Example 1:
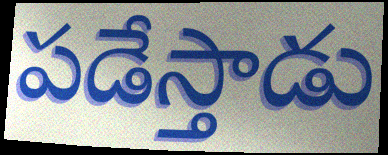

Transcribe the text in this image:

పడేస్తాడు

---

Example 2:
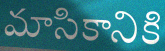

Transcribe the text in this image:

మాసికానికి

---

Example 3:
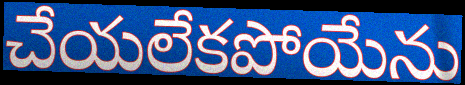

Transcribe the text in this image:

చేయలేకపోయేను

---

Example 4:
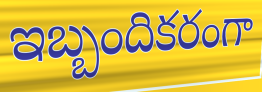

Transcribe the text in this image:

ఇబ్బందికరంగా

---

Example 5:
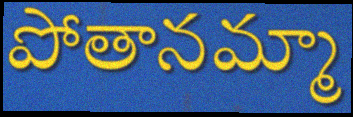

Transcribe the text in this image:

పోతానమ్మా